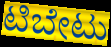
ಟಿಬೇಟು